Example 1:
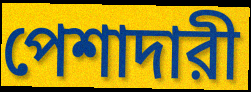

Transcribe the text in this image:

পেশাদারী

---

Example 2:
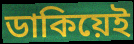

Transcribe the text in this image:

ডাকিয়েই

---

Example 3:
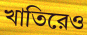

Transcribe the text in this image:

খাতিরেও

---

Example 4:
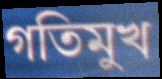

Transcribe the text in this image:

গতিমুখ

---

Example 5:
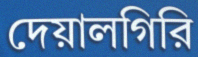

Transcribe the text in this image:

দেয়ালগিরি